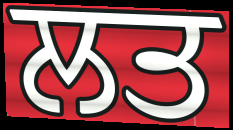
ਲਤ